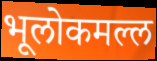
भूलोकमल्ल